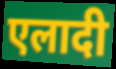
एलादी